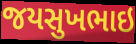
જયસુખભાઇ